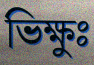
ভিক্ষুঃ